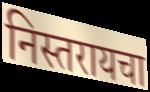
निस्तरायचा